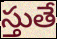
స్తుతే